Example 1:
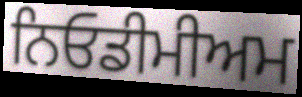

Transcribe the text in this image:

ਨਿਓਡੀਮੀਅਮ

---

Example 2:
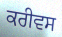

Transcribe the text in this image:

ਕਰੀਵਸ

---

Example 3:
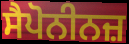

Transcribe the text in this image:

ਸੈਪੋਨੀਨਜ਼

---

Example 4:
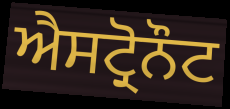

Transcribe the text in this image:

ਐਸਟ੍ਰੋਨੌਟ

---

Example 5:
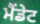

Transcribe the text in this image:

ਮੈਂਡੇਟ